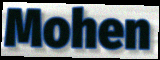
Mohen